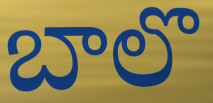
బాలొ